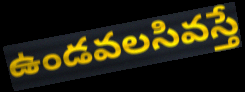
ఉండవలసివస్తే